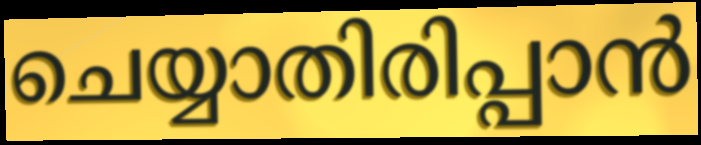
ചെയ്യാതിരിപ്പാൻ